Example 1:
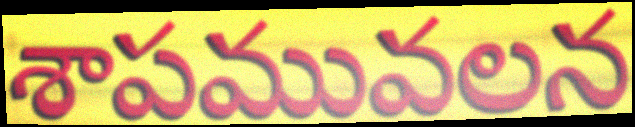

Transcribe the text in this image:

శాపమువలన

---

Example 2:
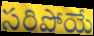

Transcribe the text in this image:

సరిపోయే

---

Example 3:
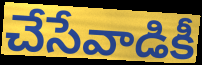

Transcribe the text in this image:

చేసేవాడికీ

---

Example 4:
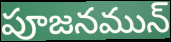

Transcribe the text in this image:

పూజనమున్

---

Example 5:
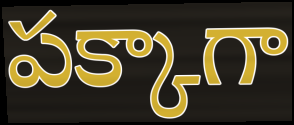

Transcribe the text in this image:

పక్కాగా